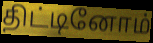
திட்டினோம்